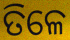
ତିଳେ